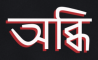
অব্ধি